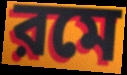
রমে